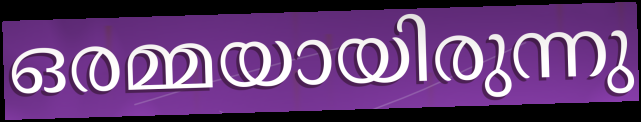
ഒരമ്മയായിരുന്നു